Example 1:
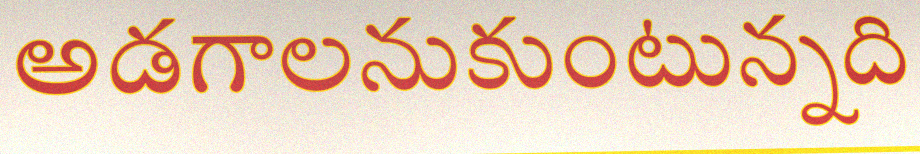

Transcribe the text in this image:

అడగాలనుకుంటున్నది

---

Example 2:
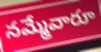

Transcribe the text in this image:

నమ్మేవారూ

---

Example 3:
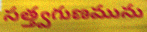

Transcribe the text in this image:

సత్త్వగుణమును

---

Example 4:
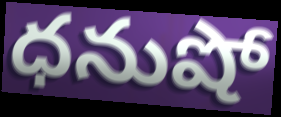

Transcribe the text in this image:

ధనుషో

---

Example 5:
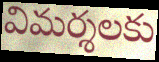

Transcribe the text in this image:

విమర్శలకు